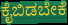
ಕೈಬಿಡಬೇಕೆ